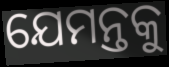
ଯେମନ୍ତକୁ